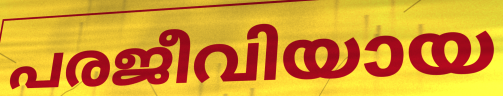
പരജീവിയായ